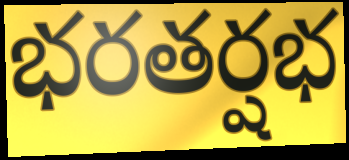
భరతర్షభ